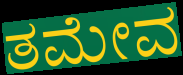
ತಮೇವ